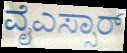
ವೈಎಸ್ಸಾರ್